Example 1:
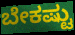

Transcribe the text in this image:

ಬೇಕಷ್ಟು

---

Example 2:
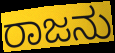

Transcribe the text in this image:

ರಾಜನು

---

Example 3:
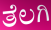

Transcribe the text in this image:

ತೆಲಗಿ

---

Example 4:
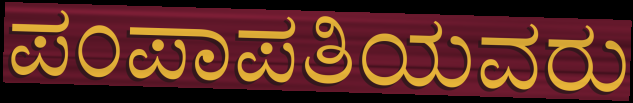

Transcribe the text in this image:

ಪಂಪಾಪತಿಯವರು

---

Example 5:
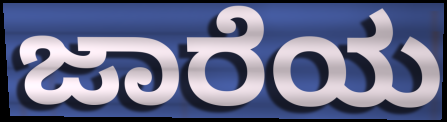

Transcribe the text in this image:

ಜಾರೆಯ